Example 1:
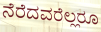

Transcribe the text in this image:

ನೆರೆದವರೆಲ್ಲರೂ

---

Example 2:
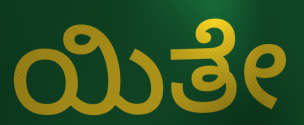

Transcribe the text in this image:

ಯಿತೇ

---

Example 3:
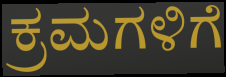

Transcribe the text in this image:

ಕ್ರಮಗಳಿಗೆ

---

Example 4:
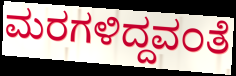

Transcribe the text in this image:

ಮರಗಳಿದ್ದವಂತೆ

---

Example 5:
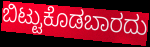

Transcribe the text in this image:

ಬಿಟ್ಟುಕೊಡಬಾರದು